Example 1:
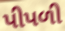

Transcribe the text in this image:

પીપળી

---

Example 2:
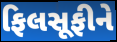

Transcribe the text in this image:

ફિલસૂફીને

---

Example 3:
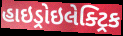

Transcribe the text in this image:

હાઇડ્રોઇલેક્ટ્રિક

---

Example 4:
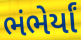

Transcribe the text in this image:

ભંભેર્યાં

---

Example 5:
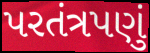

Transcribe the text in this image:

પરતંત્રપણું